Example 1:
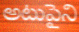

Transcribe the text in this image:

అటుపైని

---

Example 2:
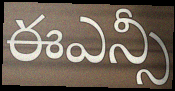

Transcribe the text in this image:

ఈఎన్సీ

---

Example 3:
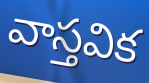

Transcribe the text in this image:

వాస్తవిక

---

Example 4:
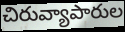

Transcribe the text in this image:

చిరువ్యాపారుల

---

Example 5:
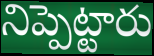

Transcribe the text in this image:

నిప్పెట్టారు